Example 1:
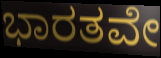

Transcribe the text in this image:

ಭಾರತವೇ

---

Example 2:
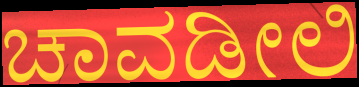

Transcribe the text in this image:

ಚಾವಡೀಲಿ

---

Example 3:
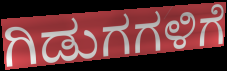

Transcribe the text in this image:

ಗಿಡುಗಗಳಿಗೆ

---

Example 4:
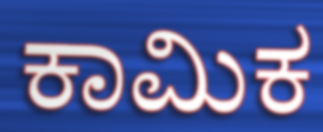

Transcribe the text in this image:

ಕಾಮಿಕ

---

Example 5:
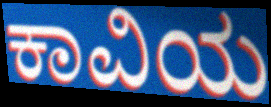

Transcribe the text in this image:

ಕಾವಿಯ